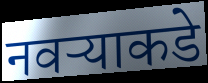
नवऱ्याकडे